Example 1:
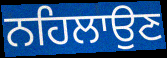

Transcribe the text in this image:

ਨਹਿਲਾਉਣ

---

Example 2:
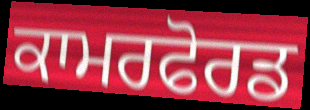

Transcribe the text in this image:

ਕਾਮਰਫੋਰਡ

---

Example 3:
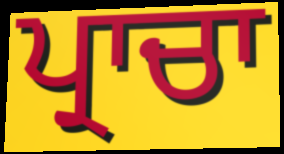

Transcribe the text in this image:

ਪ੍ਰਾਚਾ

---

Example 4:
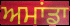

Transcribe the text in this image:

ਅਮਾਂਡਾ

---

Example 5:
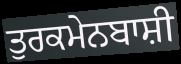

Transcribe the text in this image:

ਤੁਰਕਮੇਨਬਾਸ਼ੀ